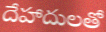
దేహాదులతో